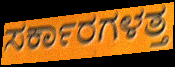
ಸರ್ಕಾರಗಳತ್ತ